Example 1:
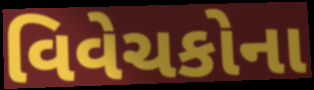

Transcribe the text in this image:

વિવેચકોના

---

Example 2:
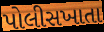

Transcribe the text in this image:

પોલીસખાતા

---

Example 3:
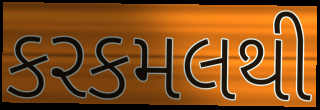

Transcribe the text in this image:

કરકમલથી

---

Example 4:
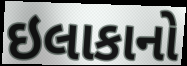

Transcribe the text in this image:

ઇલાકાનો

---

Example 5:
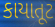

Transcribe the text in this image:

કાયાતૂટ